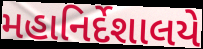
મહાનિર્દેશાલયે